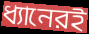
ধ্যানেরই